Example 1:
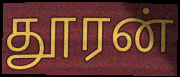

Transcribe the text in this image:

தூரன்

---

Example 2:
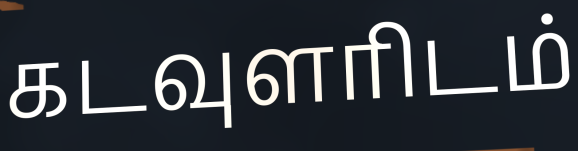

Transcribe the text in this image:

கடவுளரிடம்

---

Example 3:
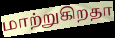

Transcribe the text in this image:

மாற்றுகிறதா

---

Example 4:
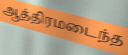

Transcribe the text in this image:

ஆத்திரமடைந்த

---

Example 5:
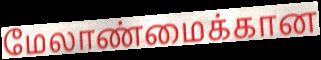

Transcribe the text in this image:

மேலாண்மைக்கான